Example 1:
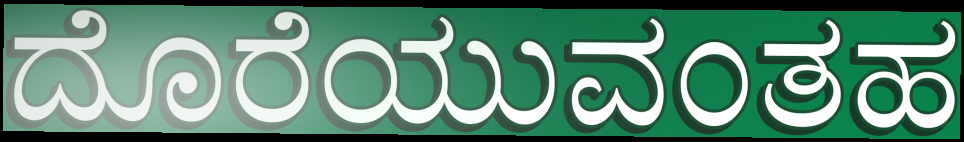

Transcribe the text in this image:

ದೊರೆಯುವಂತಹ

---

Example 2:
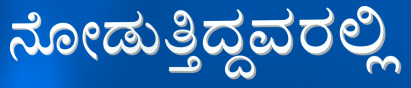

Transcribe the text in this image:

ನೋಡುತ್ತಿದ್ದವರಲ್ಲಿ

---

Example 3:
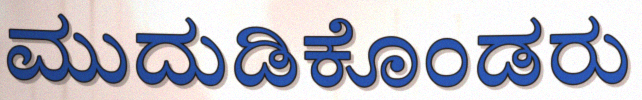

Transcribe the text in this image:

ಮುದುಡಿಕೊಂಡರು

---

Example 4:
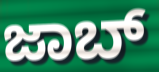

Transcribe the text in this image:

ಜಾಬ್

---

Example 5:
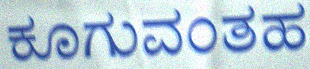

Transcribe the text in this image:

ಕೂಗುವಂತಹ